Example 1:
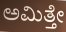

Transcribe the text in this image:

ಅಮಿತ್ತೇ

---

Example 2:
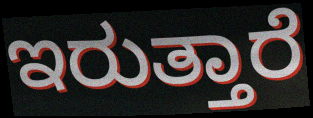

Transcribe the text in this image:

ಇರುತ್ತಾರೆ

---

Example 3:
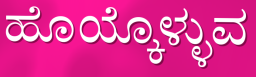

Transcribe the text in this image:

ಹೊಯ್ಕೊಳ್ಳುವ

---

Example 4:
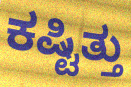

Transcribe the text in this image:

ಕಷ್ಟಿತ್ತು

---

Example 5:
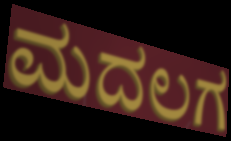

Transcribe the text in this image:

ಮದಲಗ